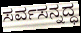
ಸರ್ವಸನ್ನದ್ಧ